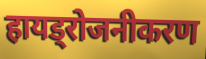
हायड्रोजनीकरण